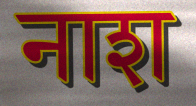
नाश